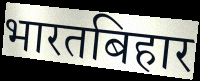
भारतबिहार